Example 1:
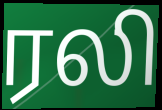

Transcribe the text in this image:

ரலி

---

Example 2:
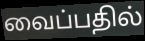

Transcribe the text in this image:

வைப்பதில்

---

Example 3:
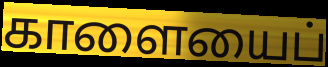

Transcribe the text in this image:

காளையைப்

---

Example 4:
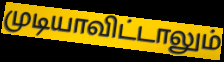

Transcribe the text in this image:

முடியாவிட்டாலும்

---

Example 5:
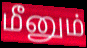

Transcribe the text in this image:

மீனும்